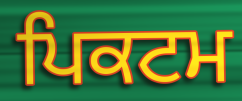
ਪਿਕਟਮ